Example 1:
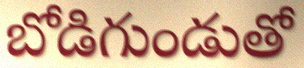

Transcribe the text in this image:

బోడిగుండుతో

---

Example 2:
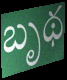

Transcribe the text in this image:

బృథ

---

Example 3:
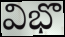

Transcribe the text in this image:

విభొ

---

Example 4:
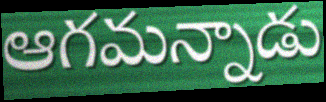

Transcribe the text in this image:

ఆగమన్నాడు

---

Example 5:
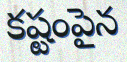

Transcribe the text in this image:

కష్టంపైన